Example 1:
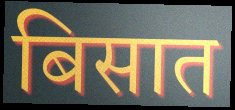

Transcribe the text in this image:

बिसात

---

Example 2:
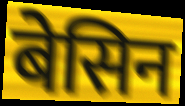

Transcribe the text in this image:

बेसिन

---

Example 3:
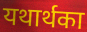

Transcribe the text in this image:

यथार्थका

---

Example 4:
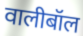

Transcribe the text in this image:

वालीबॉल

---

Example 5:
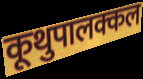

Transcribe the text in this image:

कूथुपालक्कल